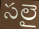
సలై